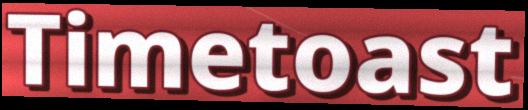
Timetoast